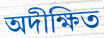
অদীক্ষিত